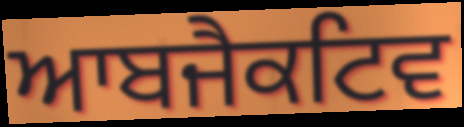
ਆਬਜੈਕਟਿਵ